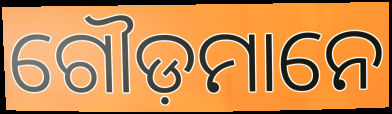
ଗୌଡ଼ମାନେ